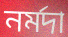
নর্মদা